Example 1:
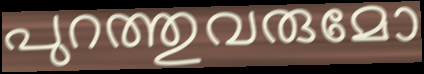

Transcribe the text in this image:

പുറത്തുവരുമോ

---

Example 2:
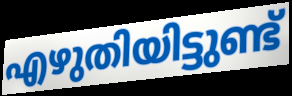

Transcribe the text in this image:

എഴുതിയിട്ടുണ്ട്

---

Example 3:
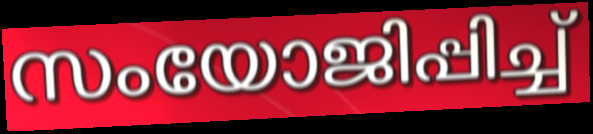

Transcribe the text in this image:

സംയോജിപ്പിച്ച്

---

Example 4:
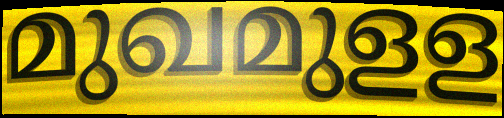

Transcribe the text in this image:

മുഖമുളള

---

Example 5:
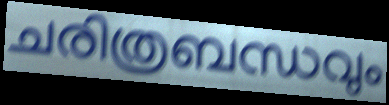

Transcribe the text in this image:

ചരിത്രബന്ധവും